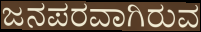
ಜನಪರವಾಗಿರುವ